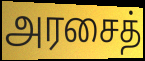
அரசைத்